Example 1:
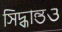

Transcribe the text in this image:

সিদ্ধান্তও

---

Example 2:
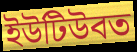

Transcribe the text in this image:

ইউটিউবত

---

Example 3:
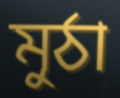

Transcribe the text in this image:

মুঠা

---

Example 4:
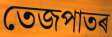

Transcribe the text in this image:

তেজপাতৰ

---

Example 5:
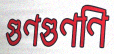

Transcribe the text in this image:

গুণগুণণি